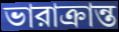
ভারাক্রান্ত